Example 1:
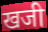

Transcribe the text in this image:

खजी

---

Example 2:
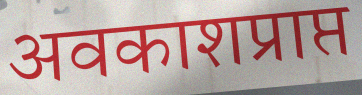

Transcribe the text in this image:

अवकाशप्राप्त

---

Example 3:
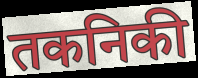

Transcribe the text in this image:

तकनिकी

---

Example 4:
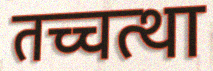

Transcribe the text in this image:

तच्चत्था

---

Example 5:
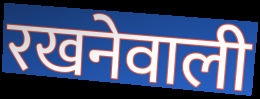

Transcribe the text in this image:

रखनेवाली